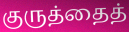
குருத்தைத்